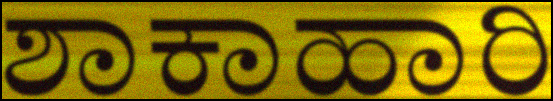
ಶಾಕಾಹಾರಿ